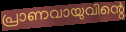
പ്രാണവായുവിന്റെ